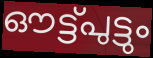
ഔട്ട്പുട്ടും